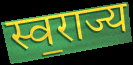
स्व॒राज्य